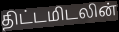
திட்டமிடலின்